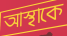
আস্থাকে